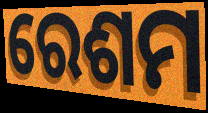
ରେଶମ